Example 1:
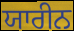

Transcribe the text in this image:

ਯਾਰੀਨ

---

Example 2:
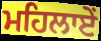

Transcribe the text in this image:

ਮਹਿਲਾਏਂ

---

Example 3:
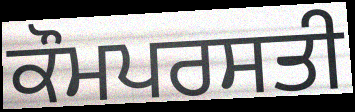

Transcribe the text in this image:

ਕੌਮਪਰਸਤੀ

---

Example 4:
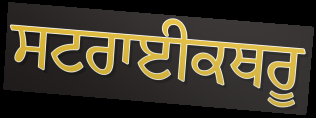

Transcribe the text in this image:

ਸਟਰਾਈਕਥਰੂ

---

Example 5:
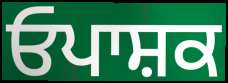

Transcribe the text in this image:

ਓਪਾਸ਼ਕ